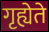
गृह्येते